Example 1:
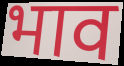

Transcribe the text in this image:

भाव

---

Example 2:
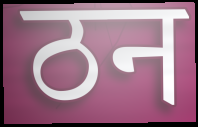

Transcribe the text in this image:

ठन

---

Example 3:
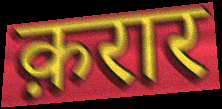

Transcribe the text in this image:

क़रार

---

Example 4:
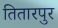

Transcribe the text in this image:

तितारपुर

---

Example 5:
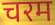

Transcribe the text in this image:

चरम